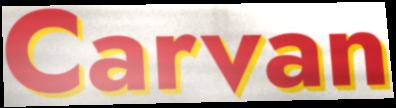
Carvan